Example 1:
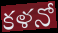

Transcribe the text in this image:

కళనో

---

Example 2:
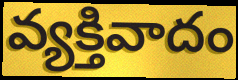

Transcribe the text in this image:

వ్యక్తివాదం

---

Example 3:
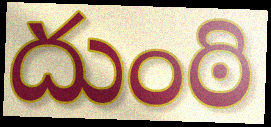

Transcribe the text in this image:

దుంఠి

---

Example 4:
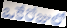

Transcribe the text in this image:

ఒకేరోజులో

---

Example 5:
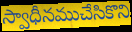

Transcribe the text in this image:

స్వాధీనముచేసికొని